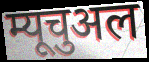
म्यूचुअल